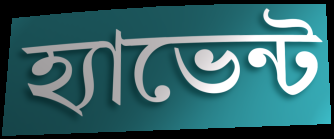
হ্যাভেন্ট